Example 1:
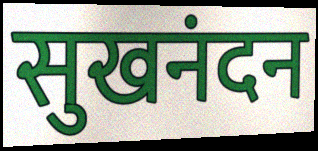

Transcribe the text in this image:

सुखनंदन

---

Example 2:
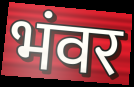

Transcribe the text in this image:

भंवर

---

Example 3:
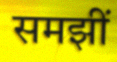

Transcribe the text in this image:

समझीं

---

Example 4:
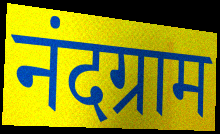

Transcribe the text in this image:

नंदग्राम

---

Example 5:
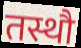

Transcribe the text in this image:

तस्थौ